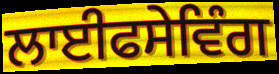
ਲਾਈਫਸੇਵਿੰਗ